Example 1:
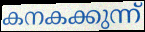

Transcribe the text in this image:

കനകക്കുന്ന്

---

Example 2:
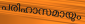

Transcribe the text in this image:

പരിഹാസമായും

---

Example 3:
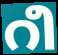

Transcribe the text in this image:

റീ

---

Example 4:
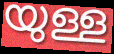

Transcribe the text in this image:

യുള്ള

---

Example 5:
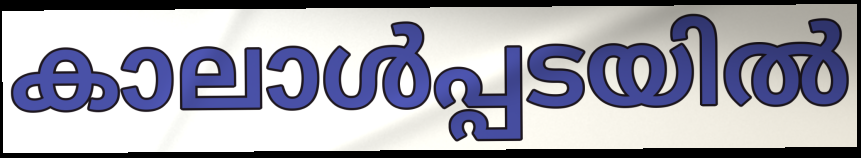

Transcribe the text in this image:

കാലാൾപ്പടയിൽ